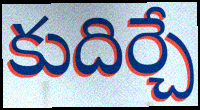
కుదిర్చే